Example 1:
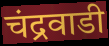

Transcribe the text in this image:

चंद्रवाडी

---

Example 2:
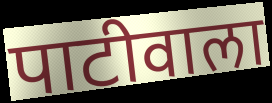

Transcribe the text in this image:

पाटीवाला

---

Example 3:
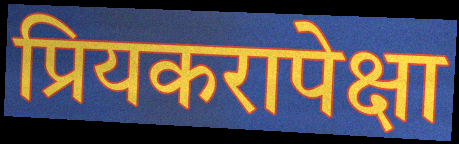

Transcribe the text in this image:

प्रियकरापेक्षा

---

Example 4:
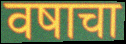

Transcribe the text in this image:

वषाचा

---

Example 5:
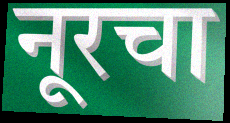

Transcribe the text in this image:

नूरचा